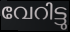
വേറിട്ടു